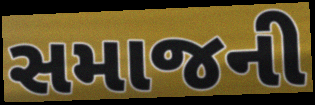
સમાજની